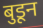
बुडून